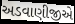
અડવાણીજીએ